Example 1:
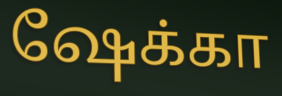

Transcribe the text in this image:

ஷேக்கா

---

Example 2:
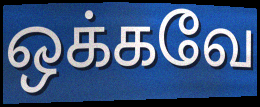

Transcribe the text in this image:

ஒக்கவே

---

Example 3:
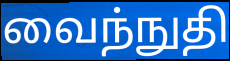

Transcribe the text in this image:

வைந்நுதி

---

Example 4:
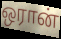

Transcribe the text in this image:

ஒரான்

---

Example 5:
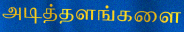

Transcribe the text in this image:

அடித்தளங்களை